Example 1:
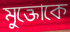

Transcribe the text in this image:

মুক্তোকে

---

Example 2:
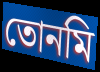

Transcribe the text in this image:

তোনমি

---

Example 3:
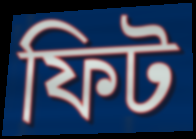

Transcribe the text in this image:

ফিট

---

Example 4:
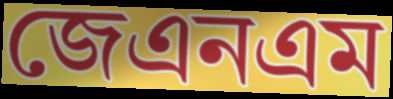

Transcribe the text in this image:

জেএনএম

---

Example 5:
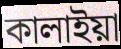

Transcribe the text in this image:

কালাইয়া